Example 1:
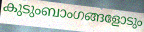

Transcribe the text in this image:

കുടുംബാംഗങ്ങളോടും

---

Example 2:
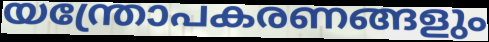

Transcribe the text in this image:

യന്ത്രോപകരണങ്ങളും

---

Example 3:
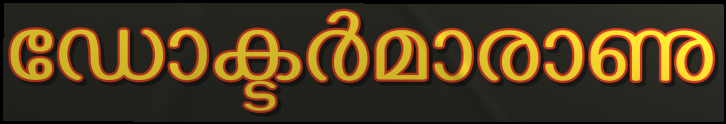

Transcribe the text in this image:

ഡോക്ടർമാരാണു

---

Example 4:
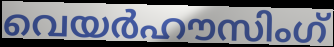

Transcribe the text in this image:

വെയർഹൗസിംഗ്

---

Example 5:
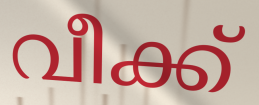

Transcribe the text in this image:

വീക്ക്